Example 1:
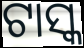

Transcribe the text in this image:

ଟାସ୍କ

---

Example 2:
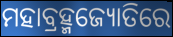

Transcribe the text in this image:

ମହାବ୍ରହ୍ମଜ୍ୟୋତିରେ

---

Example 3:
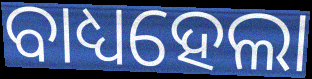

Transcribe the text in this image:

ବାଧ୍ୟହେଲା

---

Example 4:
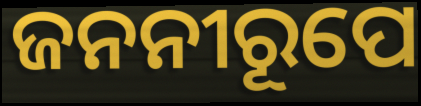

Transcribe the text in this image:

ଜନନୀରୂପେ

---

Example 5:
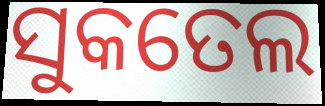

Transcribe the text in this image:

ସୁକତେଲ